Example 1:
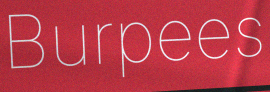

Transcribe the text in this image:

Burpees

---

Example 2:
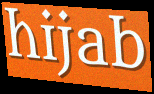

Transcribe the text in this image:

hijab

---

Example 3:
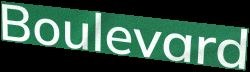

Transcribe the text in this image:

Boulevard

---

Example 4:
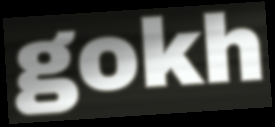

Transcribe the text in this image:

gokh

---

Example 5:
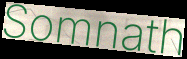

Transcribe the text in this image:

Somnath